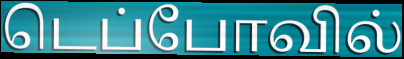
டெப்போவில்